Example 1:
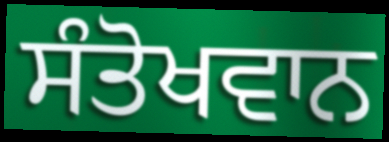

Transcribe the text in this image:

ਸੰਤੋਖਵਾਨ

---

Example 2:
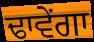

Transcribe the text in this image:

ਢਾਵੇਂਗਾ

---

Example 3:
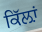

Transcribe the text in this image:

ਕਿੱਲ਼ਾਂ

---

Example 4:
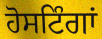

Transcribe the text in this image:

ਹੋਸਟਿੰਗਾਂ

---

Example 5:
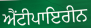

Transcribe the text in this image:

ਐਂਟੀਪਾਇਰੀਨ